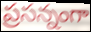
ప్రసన్నంగా